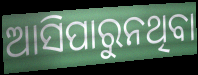
ଆସିପାରୁନଥିବା